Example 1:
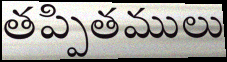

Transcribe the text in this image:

తప్పితములు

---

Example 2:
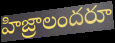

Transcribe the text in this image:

హిజ్రాలందరూ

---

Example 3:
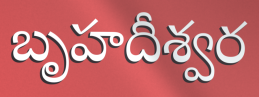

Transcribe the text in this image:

బృహదీశ్వర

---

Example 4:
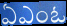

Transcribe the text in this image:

ఏఎంఓ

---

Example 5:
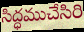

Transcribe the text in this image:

సిద్ధముచేసిరి